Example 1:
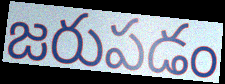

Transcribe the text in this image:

జరుపడం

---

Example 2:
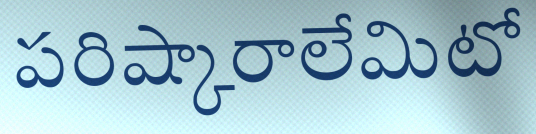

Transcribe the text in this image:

పరిష్కారాలేమిటో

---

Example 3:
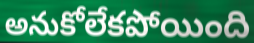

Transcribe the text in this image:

అనుకోలేకపోయింది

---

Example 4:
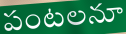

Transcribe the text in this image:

పంటలనూ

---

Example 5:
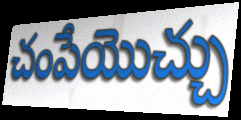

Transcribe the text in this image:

చంపేయొచ్చు